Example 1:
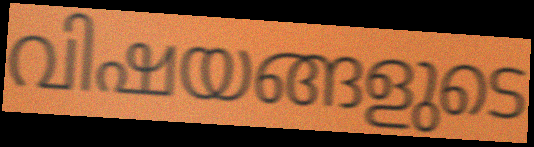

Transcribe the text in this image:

വിഷയങ്ങളുടെ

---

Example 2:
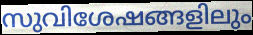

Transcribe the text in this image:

സുവിശേഷങ്ങളിലും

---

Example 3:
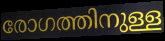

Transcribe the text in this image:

രോഗത്തിനുള്ള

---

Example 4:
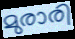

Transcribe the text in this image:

മുരാരി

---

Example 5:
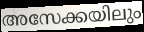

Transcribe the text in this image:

അസേക്കയിലും